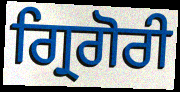
ਗ੍ਰਿਗੋਰੀ